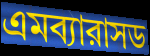
এমব্যারাসড